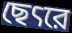
ছেৎরে